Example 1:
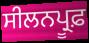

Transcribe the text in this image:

ਸੀਲਨਪ੍ਰੂਫ਼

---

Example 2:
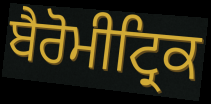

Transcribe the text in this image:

ਬੈਰੋਮੀਟ੍ਰਿਕ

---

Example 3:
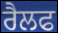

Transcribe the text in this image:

ਰੈਲਫ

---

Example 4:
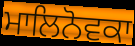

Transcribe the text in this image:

ਮਾਲਿਨੋਵਕਾ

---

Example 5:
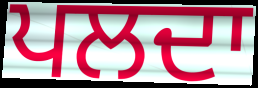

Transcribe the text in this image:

ਪਲਦਾ